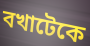
বখাটেকে